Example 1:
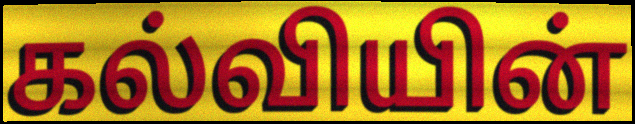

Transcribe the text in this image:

கல்வியின்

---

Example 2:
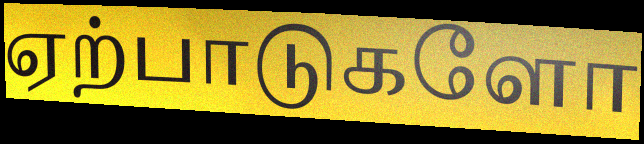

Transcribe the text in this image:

ஏற்பாடுகளோ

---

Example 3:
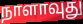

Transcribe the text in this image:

நாளாவுது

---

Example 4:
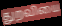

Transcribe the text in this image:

துறவியை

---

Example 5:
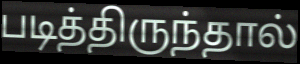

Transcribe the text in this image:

படித்திருந்தால்